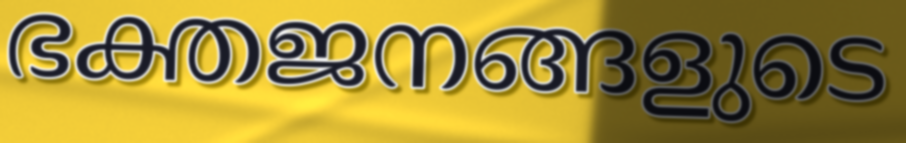
ഭക്തജനങ്ങളുടെ